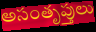
అసంతృప్తులు